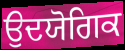
ਉਦਯੋਗਿਕ